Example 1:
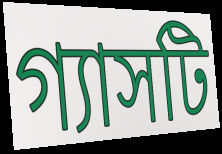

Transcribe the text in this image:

গ্যাসটি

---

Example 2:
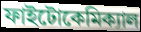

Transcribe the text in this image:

ফাইটোকেমিক্যাল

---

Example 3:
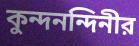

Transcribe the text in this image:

কুন্দনন্দিনীর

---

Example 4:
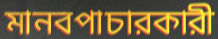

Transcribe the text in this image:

মানবপাচারকারী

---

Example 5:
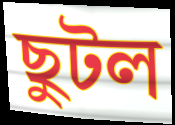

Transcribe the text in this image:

ছুটল